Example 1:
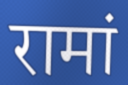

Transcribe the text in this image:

रामां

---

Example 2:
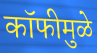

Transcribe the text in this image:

कॉफीमुळे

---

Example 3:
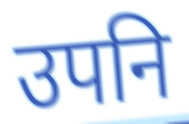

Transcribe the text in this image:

उपनि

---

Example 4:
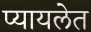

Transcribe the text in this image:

प्यायलेत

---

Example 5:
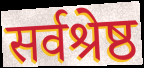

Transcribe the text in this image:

सर्वश्रेष्ठ